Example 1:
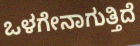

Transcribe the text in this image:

ಒಳಗೇನಾಗುತ್ತಿದೆ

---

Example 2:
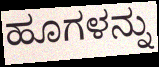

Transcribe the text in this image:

ಹೂಗಳನ್ನು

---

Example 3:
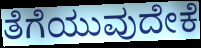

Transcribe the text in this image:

ತೆಗೆಯುವುದೇಕೆ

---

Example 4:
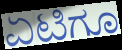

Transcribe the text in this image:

ಏಟಿಗೂ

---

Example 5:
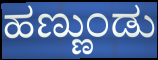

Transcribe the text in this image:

ಹಣ್ಣುಂಡು